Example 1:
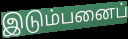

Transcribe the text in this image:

இடும்பனைப்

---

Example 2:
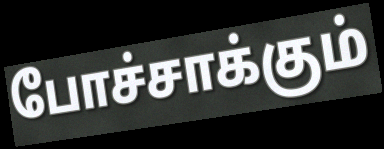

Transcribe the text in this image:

போச்சாக்கும்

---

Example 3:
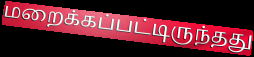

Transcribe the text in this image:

மறைக்கப்பட்டிருந்தது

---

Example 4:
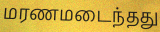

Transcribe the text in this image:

மரணமடைந்தது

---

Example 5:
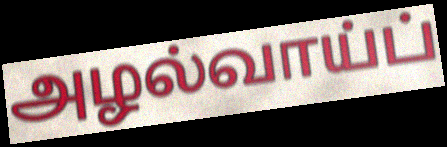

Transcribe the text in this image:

அழல்வாய்ப்